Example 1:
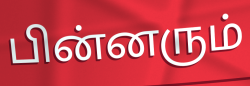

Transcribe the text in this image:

பின்னரும்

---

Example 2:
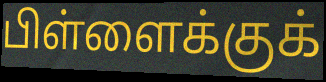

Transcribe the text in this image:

பிள்ளைக்குக்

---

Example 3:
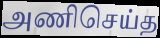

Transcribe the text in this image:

அணிசெய்த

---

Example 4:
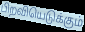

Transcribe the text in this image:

பிறவியெடுக்கும்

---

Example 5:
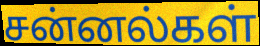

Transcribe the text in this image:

சன்னல்கள்